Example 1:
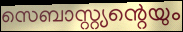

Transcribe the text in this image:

സെബാസ്റ്റ്യന്റെയും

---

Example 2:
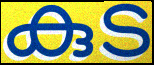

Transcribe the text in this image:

കുട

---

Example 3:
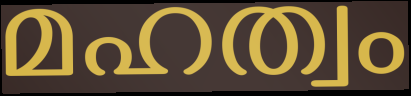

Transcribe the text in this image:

മഹത്വം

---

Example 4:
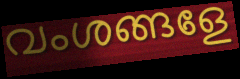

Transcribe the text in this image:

വംശങ്ങളേ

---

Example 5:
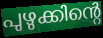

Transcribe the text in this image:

പുഴുക്കിന്റെ